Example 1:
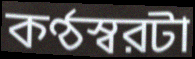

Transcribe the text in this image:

কণ্ঠস্বরটা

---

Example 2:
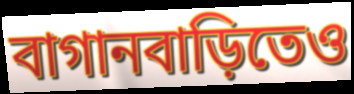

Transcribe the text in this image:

বাগানবাড়িতেও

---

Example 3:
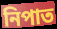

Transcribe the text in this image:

নিপাত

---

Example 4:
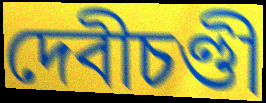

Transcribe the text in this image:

দেবীচণ্ডী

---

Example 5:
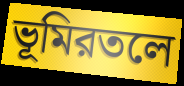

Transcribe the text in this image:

ভূমিরতলে